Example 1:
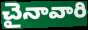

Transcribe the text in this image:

చైనావారి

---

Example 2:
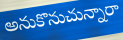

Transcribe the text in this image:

అనుకొనుచున్నారా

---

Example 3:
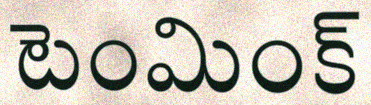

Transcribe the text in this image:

టెంమింక్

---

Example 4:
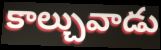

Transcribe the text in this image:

కాల్చువాడు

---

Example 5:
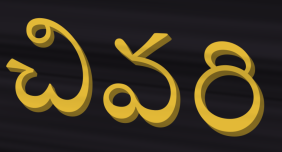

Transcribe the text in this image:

చివరి